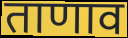
ताणाव